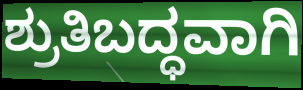
ಶ್ರುತಿಬದ್ಧವಾಗಿ